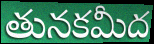
తునకమీద